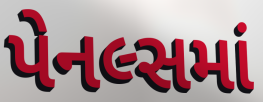
પેનલ્સમાં